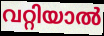
വറ്റിയാൽ